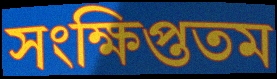
সংক্ষিপ্ততম